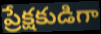
ప్రేక్షకుడిగా